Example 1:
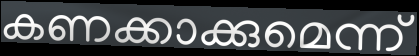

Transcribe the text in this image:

കണക്കാക്കുമെന്ന്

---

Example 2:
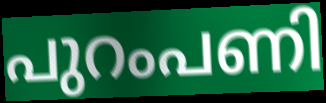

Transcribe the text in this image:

പുറംപണി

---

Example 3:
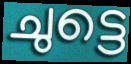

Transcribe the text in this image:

ചുട്ടെ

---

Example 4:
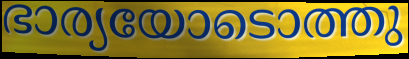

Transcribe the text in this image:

ഭാര്യയോടൊത്തു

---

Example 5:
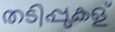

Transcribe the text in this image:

തടിപ്പുകള്